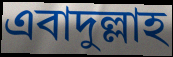
এবাদুল্লাহ